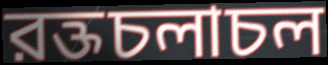
রক্তচলাচল